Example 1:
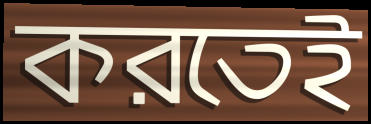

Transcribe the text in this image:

করতেই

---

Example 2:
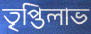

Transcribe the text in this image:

তৃপ্তিলাভ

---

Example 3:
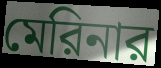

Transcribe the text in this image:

মেরিনার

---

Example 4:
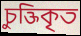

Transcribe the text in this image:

চুক্তিকৃত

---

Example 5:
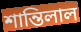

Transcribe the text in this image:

শান্তিলাল